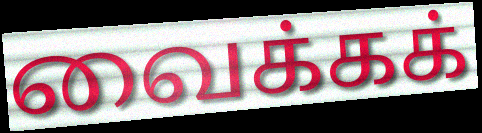
வைக்கக்